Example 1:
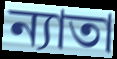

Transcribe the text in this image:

ন্যাতা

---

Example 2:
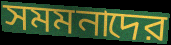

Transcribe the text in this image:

সমমনাদের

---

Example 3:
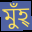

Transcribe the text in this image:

মুঁহ্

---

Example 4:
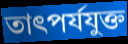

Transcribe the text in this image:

তাৎপর্যযুক্ত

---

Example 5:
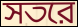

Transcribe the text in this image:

সতরে